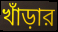
খাঁড়ার